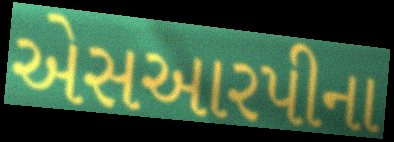
એસઆરપીના